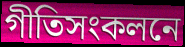
গীতিসংকলনে